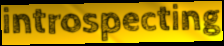
introspecting